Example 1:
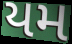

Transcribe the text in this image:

યમ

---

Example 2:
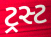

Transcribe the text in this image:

ટ્રસ્ટ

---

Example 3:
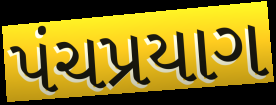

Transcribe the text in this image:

પંચપ્રયાગ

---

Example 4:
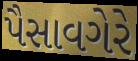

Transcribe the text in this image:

પૈસાવગેરે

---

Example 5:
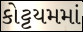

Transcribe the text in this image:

કોટ્ટયમમાં